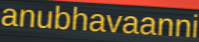
anubhavaanni